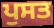
ਪੁਸਤ